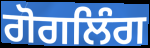
ਗੋਗਲਿੰਗ